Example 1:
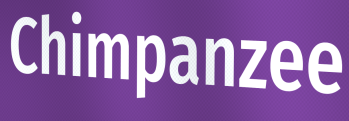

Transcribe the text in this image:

Chimpanzee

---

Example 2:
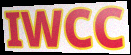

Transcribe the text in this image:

IWCC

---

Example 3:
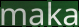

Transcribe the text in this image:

maka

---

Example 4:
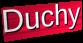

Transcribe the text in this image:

Duchy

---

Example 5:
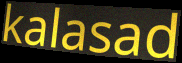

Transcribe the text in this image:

kalasad